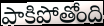
పాకిపోతోంది